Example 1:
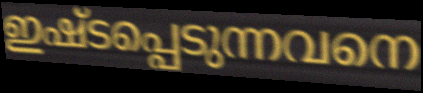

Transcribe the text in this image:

ഇഷ്ടപ്പെടുന്നവനെ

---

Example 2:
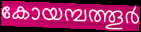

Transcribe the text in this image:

കോയമ്പത്തൂർ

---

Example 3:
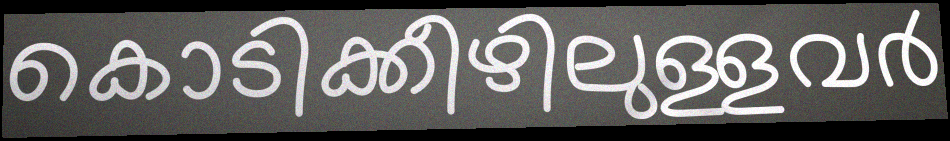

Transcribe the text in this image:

കൊടിക്കീഴിലുള്ളവർ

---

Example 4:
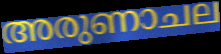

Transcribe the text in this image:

അരുണാചല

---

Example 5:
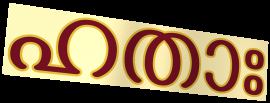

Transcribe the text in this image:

ഹതാഃ